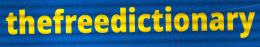
thefreedictionary